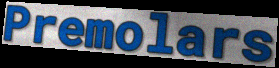
Premolars